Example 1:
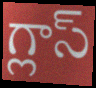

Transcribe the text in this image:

గ్లాస్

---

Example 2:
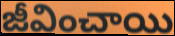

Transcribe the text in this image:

జీవించాయి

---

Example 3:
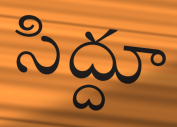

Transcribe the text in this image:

సిద్దూ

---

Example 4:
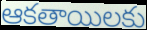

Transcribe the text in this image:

ఆకతాయిలకు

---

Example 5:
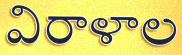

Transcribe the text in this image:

విరాళాల